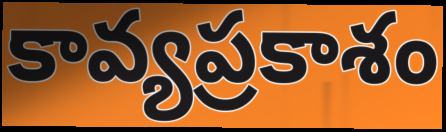
కావ్యప్రకాశం